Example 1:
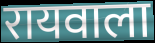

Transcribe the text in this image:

रायवाला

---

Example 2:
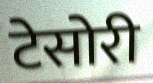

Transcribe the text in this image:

टेसोरी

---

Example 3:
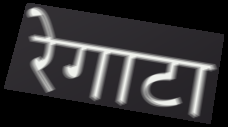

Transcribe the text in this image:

रेगाटा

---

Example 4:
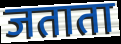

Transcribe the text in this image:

जताता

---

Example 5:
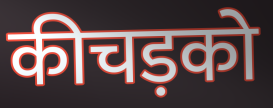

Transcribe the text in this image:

कीचड़को